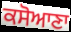
ਕਸੋਆਣਾ